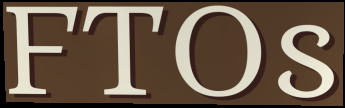
FTOs